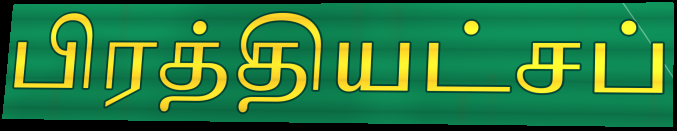
பிரத்தியட்சப்